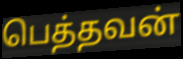
பெத்தவன்